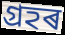
গ্ৰহৰ